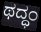
ಥದ್ಧಂ